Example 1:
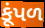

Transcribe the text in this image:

કૂંપળ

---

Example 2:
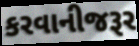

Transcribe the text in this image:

કરવાનીજરૂર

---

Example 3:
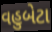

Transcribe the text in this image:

વહુબેટા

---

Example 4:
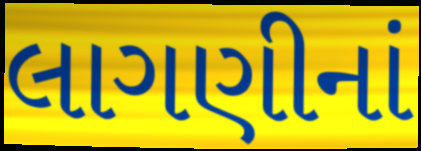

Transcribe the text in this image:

લાગણીનાં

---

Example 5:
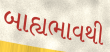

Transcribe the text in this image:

બાહ્યભાવથી